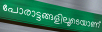
പോരാട്ടങ്ങളിലൂടെയാണ്